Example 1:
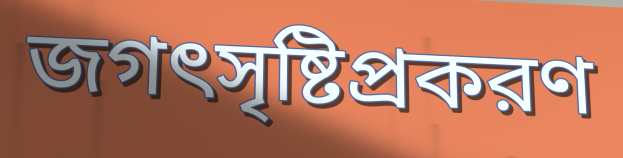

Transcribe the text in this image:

জগৎসৃষ্টিপ্রকরণ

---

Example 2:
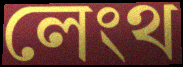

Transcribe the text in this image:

লেংথ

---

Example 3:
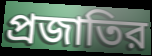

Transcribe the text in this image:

প্রজাতির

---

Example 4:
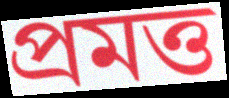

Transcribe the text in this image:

প্রমত্ত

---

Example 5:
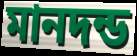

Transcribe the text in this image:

মানদন্ড